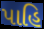
પાહિ